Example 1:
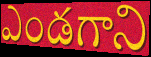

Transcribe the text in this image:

ఎండగాని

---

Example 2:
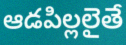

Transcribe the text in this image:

ఆడపిల్లలైతే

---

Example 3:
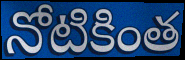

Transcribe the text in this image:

నోటికింత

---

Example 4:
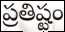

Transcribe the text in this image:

ప్రతిష్టం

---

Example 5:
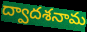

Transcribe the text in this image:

ద్వాదశనామ